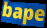
bape